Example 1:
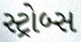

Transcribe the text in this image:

સ્ટ્રોબ્સ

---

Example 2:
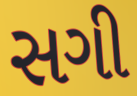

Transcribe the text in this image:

સગી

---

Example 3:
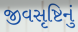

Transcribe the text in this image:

જીવસૃષ્ટિનું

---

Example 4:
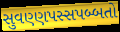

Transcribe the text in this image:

સુવણ્ણપસ્સપબ્બતો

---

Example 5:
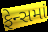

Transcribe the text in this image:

ફેન્સમાં